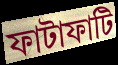
ফাটাফাটি